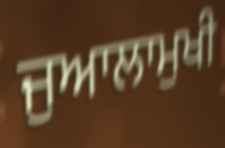
ਜੁਆਲਾਮੁਖੀ